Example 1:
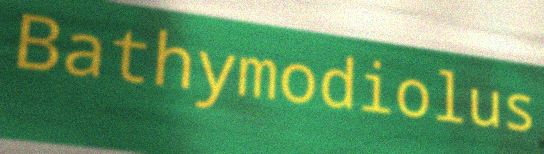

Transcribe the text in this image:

Bathymodiolus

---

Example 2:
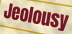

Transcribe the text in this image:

Jeolousy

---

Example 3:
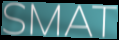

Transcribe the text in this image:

SMAT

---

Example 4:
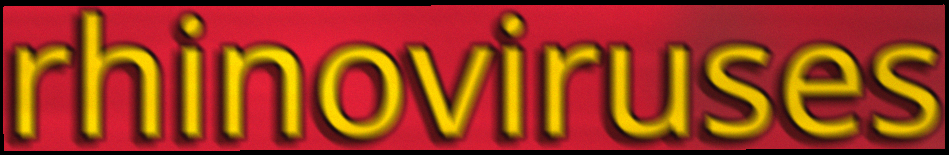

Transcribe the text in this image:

rhinoviruses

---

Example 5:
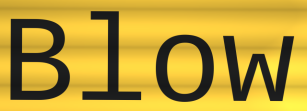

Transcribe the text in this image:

Blow